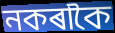
নকৰাকৈ